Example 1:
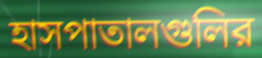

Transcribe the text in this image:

হাসপাতালগুলির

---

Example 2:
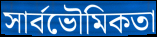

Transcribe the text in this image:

সার্বভৌমিকতা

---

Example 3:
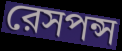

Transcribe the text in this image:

রেসপন্স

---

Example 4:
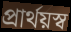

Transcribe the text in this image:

প্রার্থয়স্ব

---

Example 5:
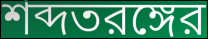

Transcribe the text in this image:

শব্দতরঙ্গের